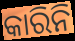
କାରିନି